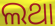
ଲଥା